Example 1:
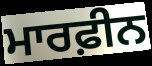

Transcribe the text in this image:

ਮਾਰਫ਼ੀਨ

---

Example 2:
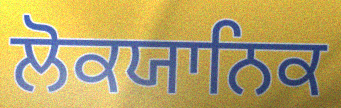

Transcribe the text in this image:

ਲੋਕਯਾਨਿਕ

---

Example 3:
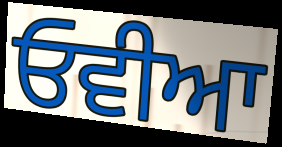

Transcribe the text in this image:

ਓਵੀਆ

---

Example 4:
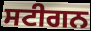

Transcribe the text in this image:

ਸਟੀਗਨ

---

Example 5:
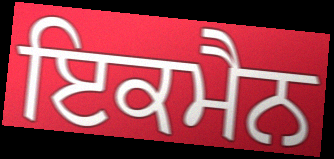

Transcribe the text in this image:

ਇਕਮੈਨ